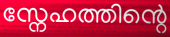
സ്നേഹത്തിന്റെ